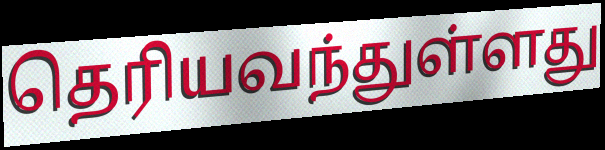
தெரியவந்துள்ளது